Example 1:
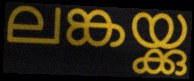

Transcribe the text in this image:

ലങ്കയ്ക്കു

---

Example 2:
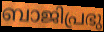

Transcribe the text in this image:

ബാജിപ്രഭു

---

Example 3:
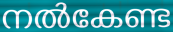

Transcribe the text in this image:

നൽകേണ്ട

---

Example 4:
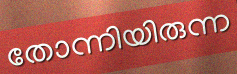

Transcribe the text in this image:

തോന്നിയിരുന്ന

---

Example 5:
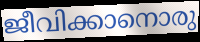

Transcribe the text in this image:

ജീവിക്കാനൊരു